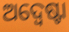
ଅଦ୍ୱେଷ୍ଟା